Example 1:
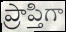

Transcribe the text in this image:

ప్రాప్తిగా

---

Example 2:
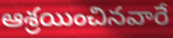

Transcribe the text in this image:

ఆశ్రయించినవారే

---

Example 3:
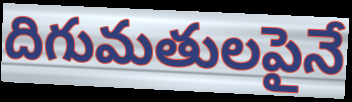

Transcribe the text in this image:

దిగుమతులపైనే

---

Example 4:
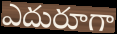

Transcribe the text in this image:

ఎదురూగా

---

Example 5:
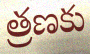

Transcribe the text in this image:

త్రణకు